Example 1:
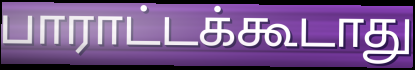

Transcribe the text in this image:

பாராட்டக்கூடாது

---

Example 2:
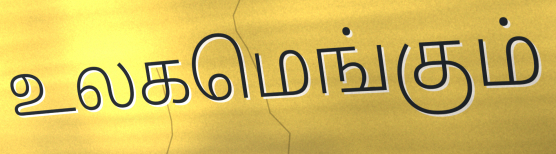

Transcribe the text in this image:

உலகமெங்கும்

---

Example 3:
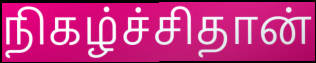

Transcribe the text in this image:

நிகழ்ச்சிதான்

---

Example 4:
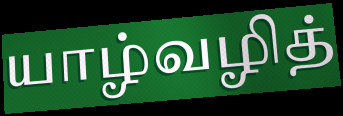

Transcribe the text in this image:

யாழ்வழித்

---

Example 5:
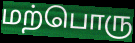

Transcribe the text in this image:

மற்பொரு